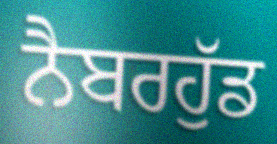
ਨੈਬਰਹੁੱਡ